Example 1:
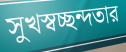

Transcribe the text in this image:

সুখস্বচ্ছন্দতার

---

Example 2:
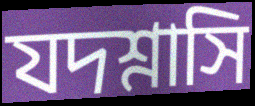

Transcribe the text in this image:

যদশ্নাসি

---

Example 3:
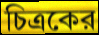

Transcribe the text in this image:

চিত্রকের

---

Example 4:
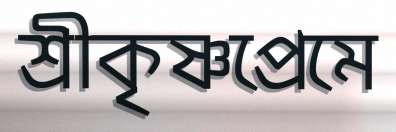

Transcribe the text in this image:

শ্রীকৃষ্ণপ্রেমে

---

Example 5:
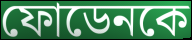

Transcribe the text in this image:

ফোডেনকে